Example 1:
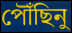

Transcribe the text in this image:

পৌঁছিনু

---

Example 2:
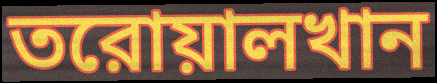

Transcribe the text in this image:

তরোয়ালখান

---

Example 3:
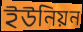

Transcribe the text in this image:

ইউনিয়ন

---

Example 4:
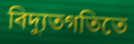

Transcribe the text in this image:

বিদ্যুতগতিতে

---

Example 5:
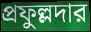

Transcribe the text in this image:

প্রফুল্লদার